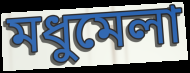
মধুমেলা